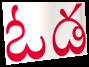
ఓడ